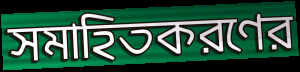
সমাহিতকরণের